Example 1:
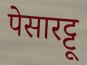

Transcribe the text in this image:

पेसारट्टू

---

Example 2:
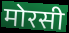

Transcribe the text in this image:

मोरसी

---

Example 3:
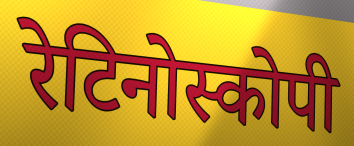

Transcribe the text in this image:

रेटिनोस्कोपी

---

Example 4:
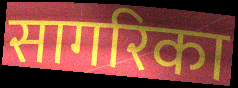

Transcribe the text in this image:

सागरिका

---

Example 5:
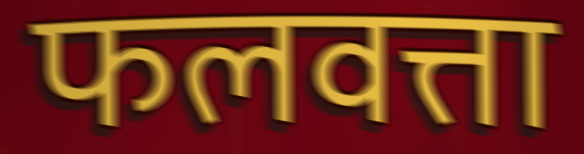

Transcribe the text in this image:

फलवत्ता